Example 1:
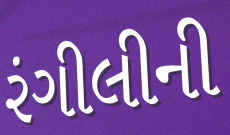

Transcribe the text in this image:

રંગીલીની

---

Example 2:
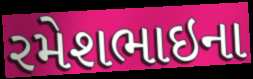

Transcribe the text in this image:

રમેશભાઇના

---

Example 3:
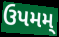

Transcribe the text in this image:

ઉપમમ્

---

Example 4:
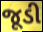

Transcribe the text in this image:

જૂડી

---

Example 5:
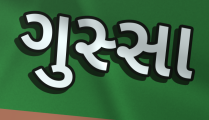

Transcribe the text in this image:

ગુસ્સા